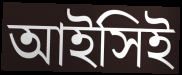
আইসিই